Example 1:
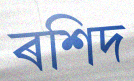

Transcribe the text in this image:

ৰশিদ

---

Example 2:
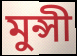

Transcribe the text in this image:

মুন্সী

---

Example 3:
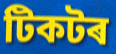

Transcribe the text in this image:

টিকটৰ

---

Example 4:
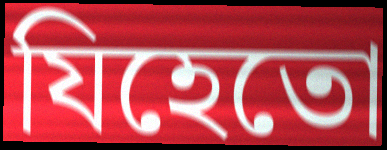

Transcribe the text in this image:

যিহেতো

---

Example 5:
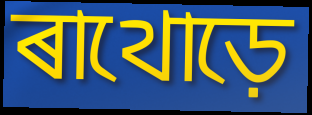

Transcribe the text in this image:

ৰাথোড়ে